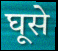
घूसे